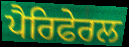
ਪੈਰਿਫੇਰਲ